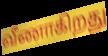
வீணாகிறது